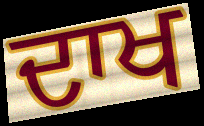
ਦਾਖ